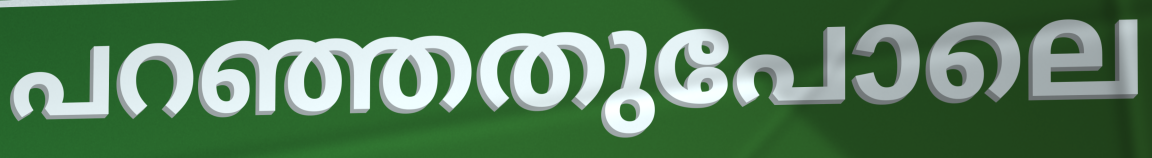
പറഞ്ഞതുപോലെ